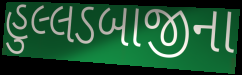
હુલ્લડબાજીના